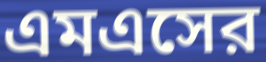
এমএসের